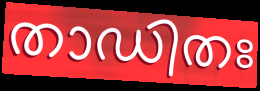
താഡിതഃ